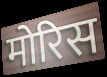
मोरिस